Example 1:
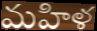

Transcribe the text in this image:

మహిళ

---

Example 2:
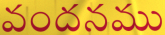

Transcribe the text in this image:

వందనము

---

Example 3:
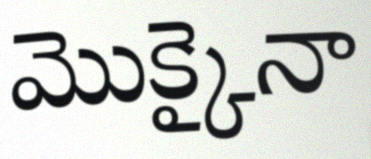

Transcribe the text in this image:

మొక్కైనా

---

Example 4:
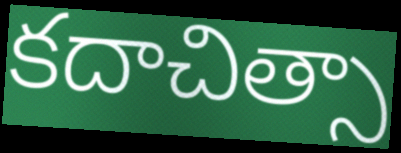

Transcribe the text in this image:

కదాచిత్సా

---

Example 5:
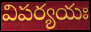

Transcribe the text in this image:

విపర్యయః